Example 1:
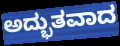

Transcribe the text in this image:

ಅದ್ಭುತವಾದ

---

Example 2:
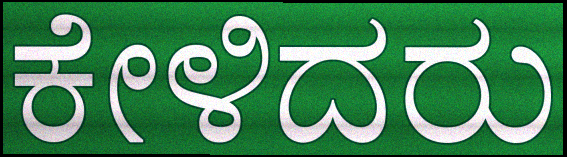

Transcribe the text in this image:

ಕೇಳಿದರು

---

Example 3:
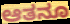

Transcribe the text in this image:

ಆತನೂ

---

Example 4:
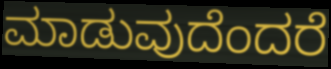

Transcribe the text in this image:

ಮಾಡುವುದೆಂದರೆ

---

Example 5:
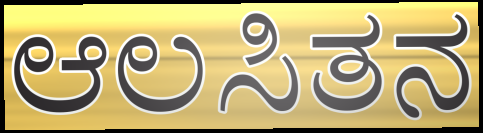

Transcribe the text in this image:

ಆಲಸಿತನ